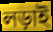
লড়াই